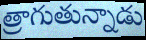
త్రాగుతున్నాడు